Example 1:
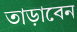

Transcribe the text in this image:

তাড়াবেন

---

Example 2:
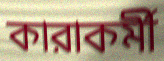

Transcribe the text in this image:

কারাকর্মী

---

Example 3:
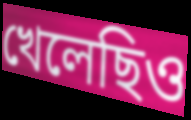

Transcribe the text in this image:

খেলেছিও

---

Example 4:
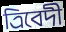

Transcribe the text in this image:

ত্রিবেদী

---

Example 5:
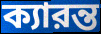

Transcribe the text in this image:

ক্যারন্ত